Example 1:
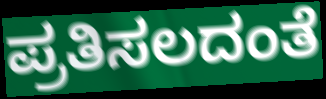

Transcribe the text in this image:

ಪ್ರತಿಸಲದಂತೆ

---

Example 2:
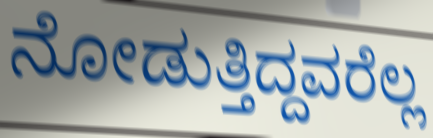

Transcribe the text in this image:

ನೋಡುತ್ತಿದ್ದವರೆಲ್ಲ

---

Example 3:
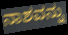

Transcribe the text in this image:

ನಾಶವನ್ನು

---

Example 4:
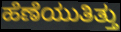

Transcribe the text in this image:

ಹೆಣೆಯುತಿತ್ತು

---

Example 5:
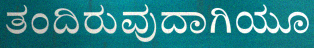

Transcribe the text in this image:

ತಂದಿರುವುದಾಗಿಯೂ